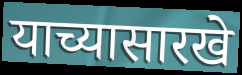
याच्यासारखे